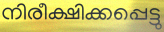
നിരീക്ഷിക്കപ്പെട്ടു